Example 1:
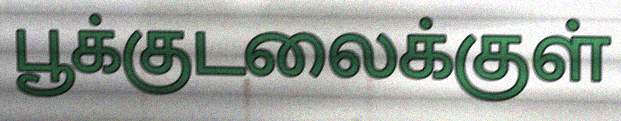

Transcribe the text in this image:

பூக்குடலைக்குள்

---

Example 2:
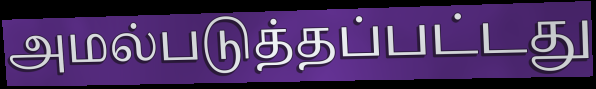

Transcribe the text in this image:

அமல்படுத்தப்பட்டது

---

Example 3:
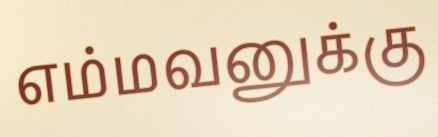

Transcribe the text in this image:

எம்மவனுக்கு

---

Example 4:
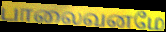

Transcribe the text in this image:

பாலைவனமே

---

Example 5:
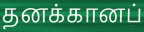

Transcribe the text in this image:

தனக்கானப்